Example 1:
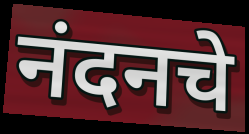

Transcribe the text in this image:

नंदनचे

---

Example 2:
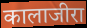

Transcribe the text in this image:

कालाजीरा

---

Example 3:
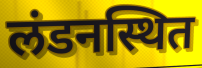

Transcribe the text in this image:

लंडनस्थित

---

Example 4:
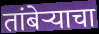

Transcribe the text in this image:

तांबेऱ्याचा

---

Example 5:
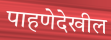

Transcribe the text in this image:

पाहणेदेखील